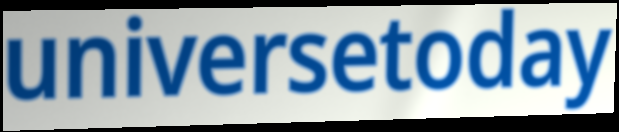
universetoday